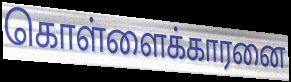
கொள்ளைக்காரனை